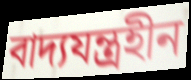
বাদ্যযন্ত্ৰহীন